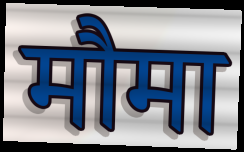
मौमा